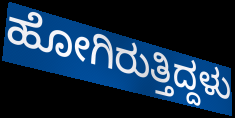
ಹೋಗಿರುತ್ತಿದ್ದಳು